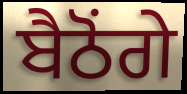
ਬੈਠੋਂਗੇ